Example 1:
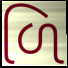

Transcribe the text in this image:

ળિ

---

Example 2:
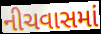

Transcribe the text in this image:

નીચવાસમાં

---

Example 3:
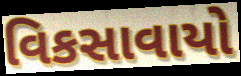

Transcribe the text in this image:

વિકસાવાયો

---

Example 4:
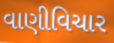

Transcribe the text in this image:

વાણીવિચાર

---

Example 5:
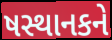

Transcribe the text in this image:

ષસ્થાનકને